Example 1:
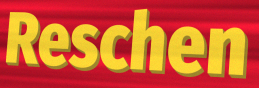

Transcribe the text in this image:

Reschen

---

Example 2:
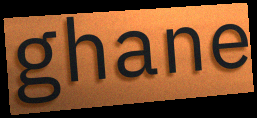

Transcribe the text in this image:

ghane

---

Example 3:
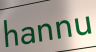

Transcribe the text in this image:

hannu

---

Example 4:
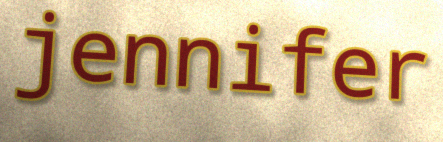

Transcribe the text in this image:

jennifer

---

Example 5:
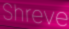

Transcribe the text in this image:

Shreve